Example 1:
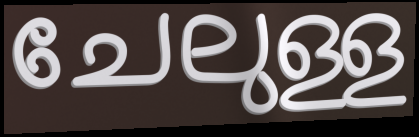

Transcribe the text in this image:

ചേലുള്ള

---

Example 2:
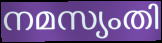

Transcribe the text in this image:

നമസ്യംതി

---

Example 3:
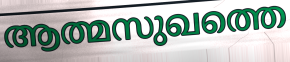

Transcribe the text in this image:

ആത്മസുഖത്തെ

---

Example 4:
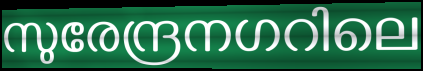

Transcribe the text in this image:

സുരേന്ദ്രനഗറിലെ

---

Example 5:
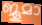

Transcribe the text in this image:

ജൂമാ